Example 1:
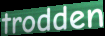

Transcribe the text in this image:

trodden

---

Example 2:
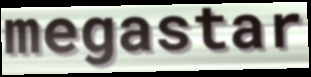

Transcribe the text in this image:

megastar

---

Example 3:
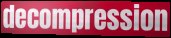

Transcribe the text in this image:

decompression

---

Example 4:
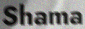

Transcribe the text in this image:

Shama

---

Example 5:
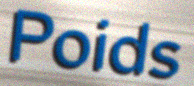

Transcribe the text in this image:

Poids